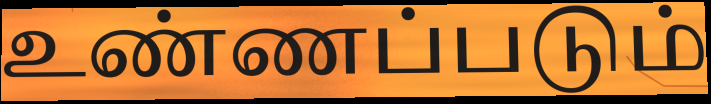
உண்ணப்படும்